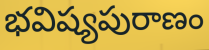
భవిష్యపురాణం